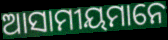
ଆସାମୀୟମାନେ